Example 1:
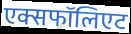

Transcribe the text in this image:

एक्सफॉलिएट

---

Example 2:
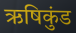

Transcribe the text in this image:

ऋषिकुंड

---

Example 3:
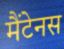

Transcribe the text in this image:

मैंटेनस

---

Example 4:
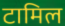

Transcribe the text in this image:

टामिल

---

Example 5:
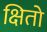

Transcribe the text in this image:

क्षितो